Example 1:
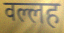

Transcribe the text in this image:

वल्लह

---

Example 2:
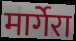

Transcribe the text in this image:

मार्गेरा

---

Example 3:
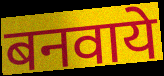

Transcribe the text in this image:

बनवाये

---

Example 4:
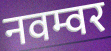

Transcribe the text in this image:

नवम्वर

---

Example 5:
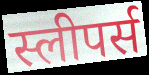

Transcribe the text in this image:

स्लीपर्स